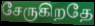
சேருகிறதே